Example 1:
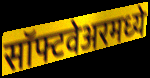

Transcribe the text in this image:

सॉफ्टवेअरमध्ये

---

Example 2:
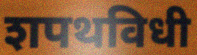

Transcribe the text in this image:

शपथविधी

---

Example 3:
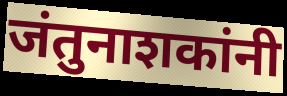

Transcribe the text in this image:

जंतुनाशकांनी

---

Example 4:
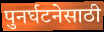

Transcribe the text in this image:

पुनर्घटनेसाठी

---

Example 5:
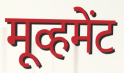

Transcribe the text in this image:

मूव्हमेंट